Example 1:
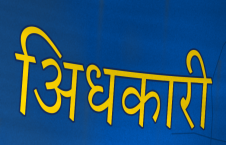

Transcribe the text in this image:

अिधकारी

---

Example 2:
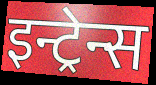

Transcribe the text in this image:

इन्ट्रेन्स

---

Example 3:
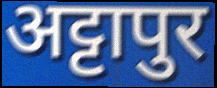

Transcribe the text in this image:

अट्टापुर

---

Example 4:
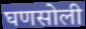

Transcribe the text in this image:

घणसोली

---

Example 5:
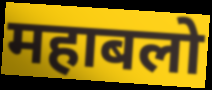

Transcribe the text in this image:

महाबलो